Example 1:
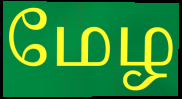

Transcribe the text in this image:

மேழ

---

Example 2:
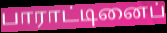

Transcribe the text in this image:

பாராட்டினைப்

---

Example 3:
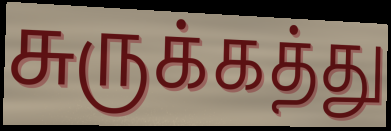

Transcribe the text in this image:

சுருக்கத்து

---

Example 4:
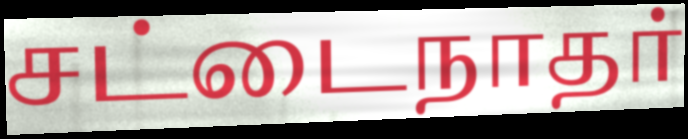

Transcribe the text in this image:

சட்டைநாதர்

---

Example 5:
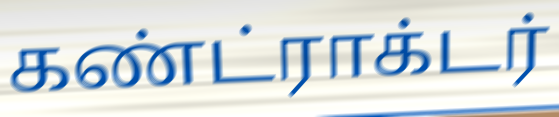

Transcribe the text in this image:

கண்ட்ராக்டர்